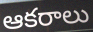
ఆకరాలు